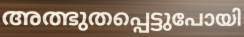
അത്ഭുതപ്പെട്ടുപോയി